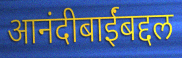
आनंदीबाईंबद्दल